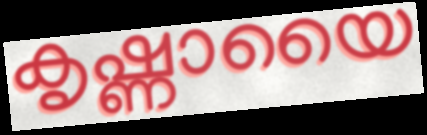
കൃഷ്ണായൈ